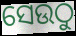
ସେଉଠୁ